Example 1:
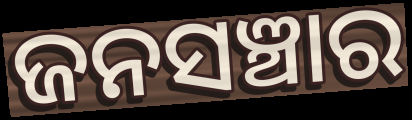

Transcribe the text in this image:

ଜନସଞ୍ଚାର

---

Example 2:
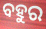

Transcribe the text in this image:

ବହୁର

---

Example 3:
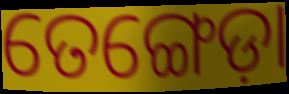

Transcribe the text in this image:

ତେଙ୍ଗେଡ଼ା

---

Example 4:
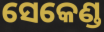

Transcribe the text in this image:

ସେକେଣ୍ଡ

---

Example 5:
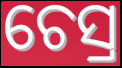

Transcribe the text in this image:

ଚେସ୍ର